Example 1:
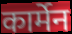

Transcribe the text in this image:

कार्मेन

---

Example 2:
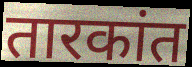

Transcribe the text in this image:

तारकांत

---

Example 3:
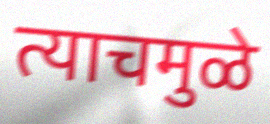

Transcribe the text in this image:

त्याचमुळे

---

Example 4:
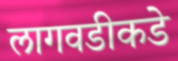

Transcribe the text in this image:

लागवडीकडे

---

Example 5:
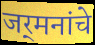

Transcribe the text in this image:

जर्मनांचे